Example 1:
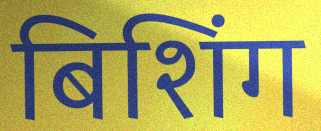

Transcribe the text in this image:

बिशिंग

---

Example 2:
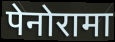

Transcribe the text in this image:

पेनोरामा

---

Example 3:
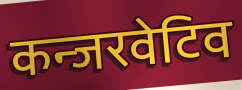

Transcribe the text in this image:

कन्जरवेटिव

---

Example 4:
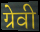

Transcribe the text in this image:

ग्रेवी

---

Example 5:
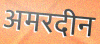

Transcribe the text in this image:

अमरदीन